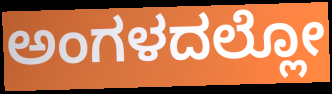
ಅಂಗಳದಲ್ಲೋ